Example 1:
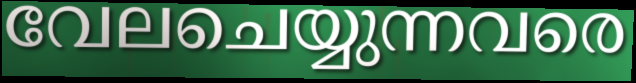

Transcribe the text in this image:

വേലചെയ്യുന്നവരെ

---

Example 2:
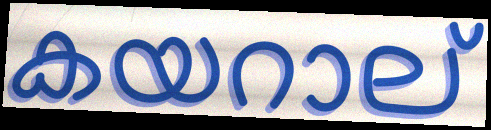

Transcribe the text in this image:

കയറാല്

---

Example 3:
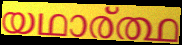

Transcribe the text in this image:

യഥാര്ത്ഥ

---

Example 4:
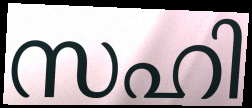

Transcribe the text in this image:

സഹി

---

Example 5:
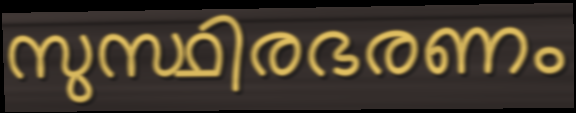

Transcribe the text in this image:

സുസ്ഥിരഭരണം